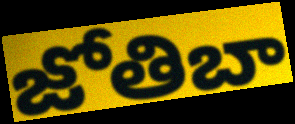
జోతిబా